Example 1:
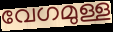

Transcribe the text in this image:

വേഗമുള്ള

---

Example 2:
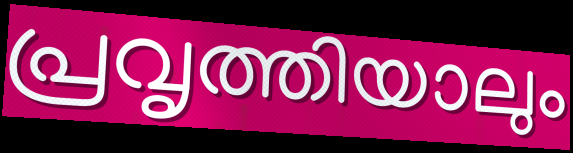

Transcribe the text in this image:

പ്രവൃത്തിയാലും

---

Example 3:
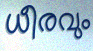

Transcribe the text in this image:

ധീരവും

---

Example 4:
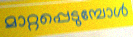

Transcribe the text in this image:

മാറ്റപ്പെടുമ്പോൾ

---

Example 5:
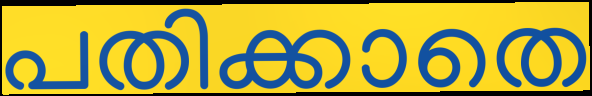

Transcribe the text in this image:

പതിക്കാതെ